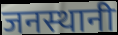
जनस्थानी